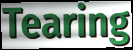
Tearing